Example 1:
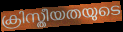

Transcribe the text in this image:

ക്രിസ്തീയതയുടെ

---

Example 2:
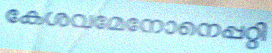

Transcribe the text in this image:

കേശവമേനോനെപ്പറ്റി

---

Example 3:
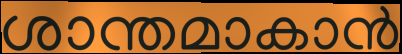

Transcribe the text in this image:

ശാന്തമാകാൻ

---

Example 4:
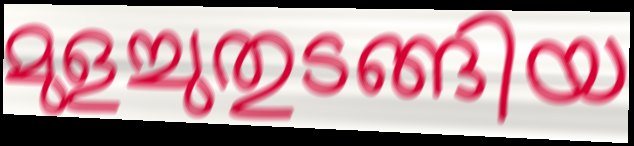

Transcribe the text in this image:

മുളച്ചുതുടങ്ങിയ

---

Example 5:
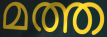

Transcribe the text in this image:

മത്ത